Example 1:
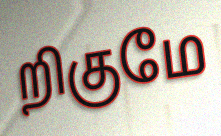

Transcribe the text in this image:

றிகுமே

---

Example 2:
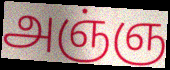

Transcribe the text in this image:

அஞ்ஞ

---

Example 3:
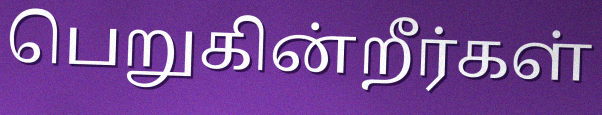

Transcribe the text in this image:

பெறுகின்றீர்கள்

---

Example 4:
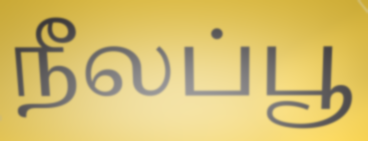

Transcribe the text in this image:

நீலப்பூ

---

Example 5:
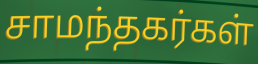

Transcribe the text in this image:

சாமந்தகர்கள்